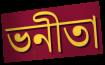
ভনীতা